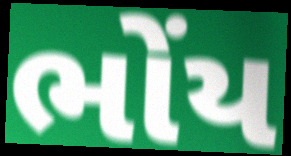
ભોંય